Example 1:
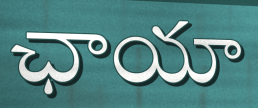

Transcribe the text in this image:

ఛాయా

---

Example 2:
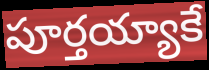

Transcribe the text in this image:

పూర్తయ్యాకే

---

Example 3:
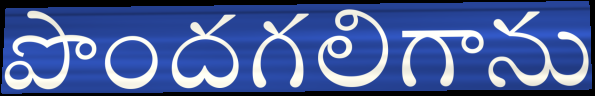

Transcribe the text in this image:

పొందగలిగాను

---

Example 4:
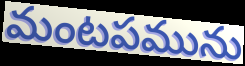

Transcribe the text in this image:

మంటపమును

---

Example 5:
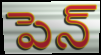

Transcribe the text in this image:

పెన్